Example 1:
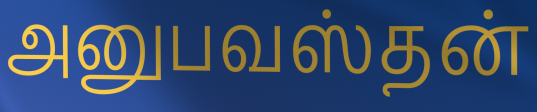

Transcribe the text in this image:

அனுபவஸ்தன்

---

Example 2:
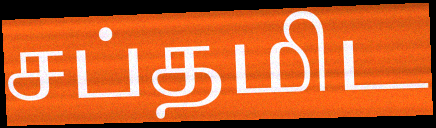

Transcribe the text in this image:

சப்தமிட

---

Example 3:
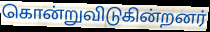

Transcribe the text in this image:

கொன்றுவிடுகின்றனர்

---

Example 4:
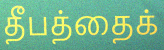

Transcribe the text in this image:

தீபத்தைக்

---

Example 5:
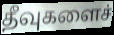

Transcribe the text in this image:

தீவுகளைச்